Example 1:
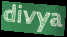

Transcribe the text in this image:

divya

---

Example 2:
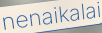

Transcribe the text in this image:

nenaikalai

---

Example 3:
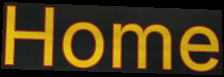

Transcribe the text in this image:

Home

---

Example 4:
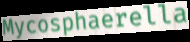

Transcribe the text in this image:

Mycosphaerella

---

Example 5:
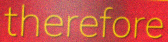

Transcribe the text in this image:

therefore